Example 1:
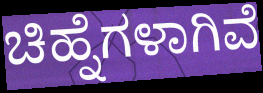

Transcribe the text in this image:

ಚಿಹ್ನೆಗಳಾಗಿವೆ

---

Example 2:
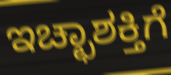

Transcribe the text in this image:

ಇಚ್ಛಾಶಕ್ತಿಗೆ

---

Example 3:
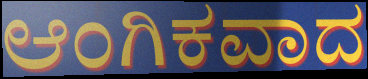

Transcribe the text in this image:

ಆಂಗಿಕವಾದ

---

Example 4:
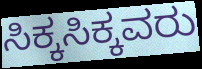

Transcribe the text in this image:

ಸಿಕ್ಕಸಿಕ್ಕವರು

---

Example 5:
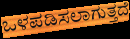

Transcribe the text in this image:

ಒಳಪಡಿಸಲಾಗುತ್ತದೆ